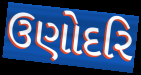
ઉણોદરિ